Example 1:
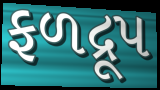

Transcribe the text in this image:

ફળદ્રૂપ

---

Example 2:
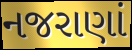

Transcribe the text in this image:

નજરાણાં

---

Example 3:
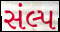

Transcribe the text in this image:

સંલ્પ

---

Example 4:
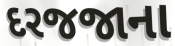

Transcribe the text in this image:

દરજજાના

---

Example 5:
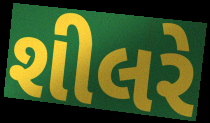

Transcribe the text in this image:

શીલરે